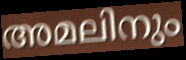
അമലിനും